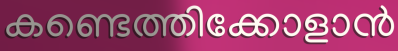
കണ്ടെത്തിക്കോളാൻ